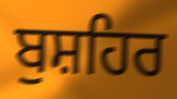
ਬੁਸ਼ਹਿਰ